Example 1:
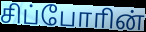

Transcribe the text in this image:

சிப்போரின்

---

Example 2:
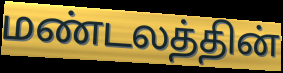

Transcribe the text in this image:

மண்டலத்தின்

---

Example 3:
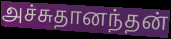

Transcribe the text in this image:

அச்சுதானந்தன்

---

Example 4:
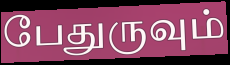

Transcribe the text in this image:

பேதுருவும்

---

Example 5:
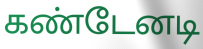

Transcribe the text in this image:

கண்டேனடி